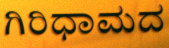
ಗಿರಿಧಾಮದ